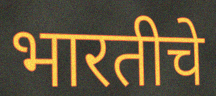
भारतीचे